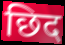
छिद